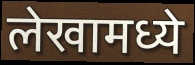
लेखामध्ये